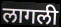
लागली